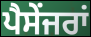
ਪੈਸੇਂਜਰਾਂ